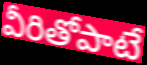
వీరితోపాటే